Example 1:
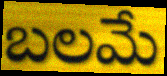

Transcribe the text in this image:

బలమే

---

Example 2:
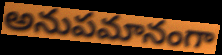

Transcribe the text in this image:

అనుపమానంగా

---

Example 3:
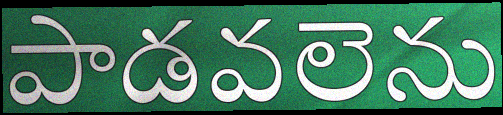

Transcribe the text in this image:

పాడవలెను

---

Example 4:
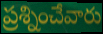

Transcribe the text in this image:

ప్రశ్నించేవారు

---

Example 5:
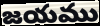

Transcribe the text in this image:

జయము